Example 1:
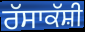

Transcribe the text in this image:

ਰੱਸਾਕੱਸ਼ੀ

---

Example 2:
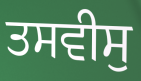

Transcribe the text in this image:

ਤਸਵੀਸੁ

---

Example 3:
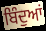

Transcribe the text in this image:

ਬਿੰਦੁਆਂ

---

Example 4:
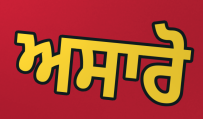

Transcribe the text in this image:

ਅਸਾਰੋ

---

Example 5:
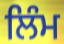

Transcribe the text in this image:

ਲਿੰਮ